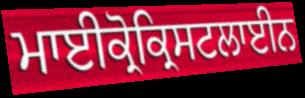
ਮਾਈਕ੍ਰੋਕ੍ਰਿਸਟਲਾਈਨ